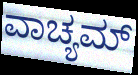
ವಾಚ್ಯಮ್